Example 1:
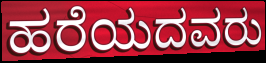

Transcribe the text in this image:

ಹರೆಯದವರು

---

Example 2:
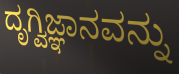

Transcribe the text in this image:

ದೃಗ್ವಿಜ್ಞಾನವನ್ನು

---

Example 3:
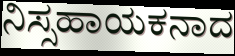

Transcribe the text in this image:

ನಿಸ್ಸಹಾಯಕನಾದ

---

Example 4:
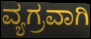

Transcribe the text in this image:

ವ್ಯಗ್ರವಾಗಿ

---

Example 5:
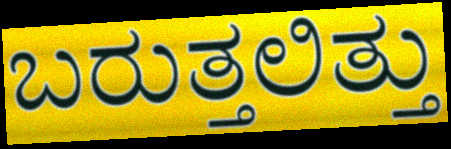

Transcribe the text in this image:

ಬರುತ್ತಲಿತ್ತು